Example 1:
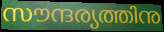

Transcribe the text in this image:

സൗന്ദര്യത്തിനു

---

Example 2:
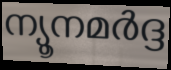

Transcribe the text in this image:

ന്യൂനമർദ്ദ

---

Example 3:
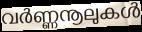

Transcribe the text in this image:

വർണ്ണനൂലുകൾ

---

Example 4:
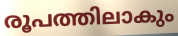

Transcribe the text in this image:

രൂപത്തിലാകും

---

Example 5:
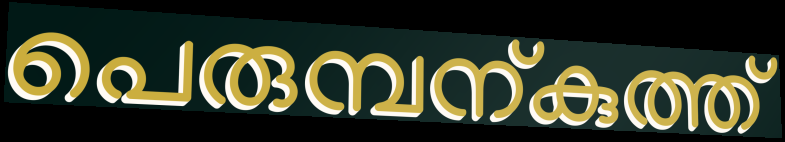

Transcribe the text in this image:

പെരുമ്പന്കുത്ത്